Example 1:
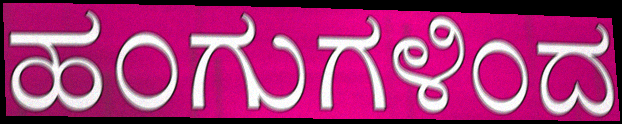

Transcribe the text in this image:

ಹಂಗುಗಳಿಂದ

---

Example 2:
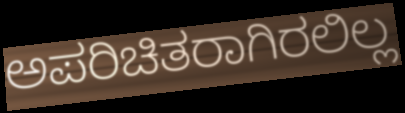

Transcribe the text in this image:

ಅಪರಿಚಿತರಾಗಿರಲಿಲ್ಲ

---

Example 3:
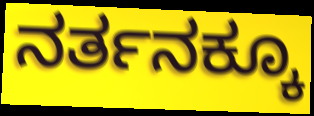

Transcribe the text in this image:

ನರ್ತನಕ್ಕೂ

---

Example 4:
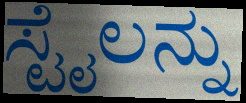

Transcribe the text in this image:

ಸ್ಟೈಲನ್ನು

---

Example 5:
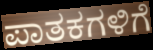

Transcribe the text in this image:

ಪಾತಕಗಳಿಗೆ